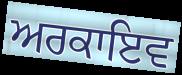
ਅਰਕਾਇਵ